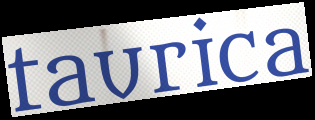
taurica